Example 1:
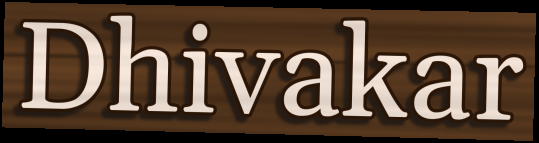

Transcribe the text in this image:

Dhivakar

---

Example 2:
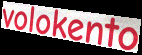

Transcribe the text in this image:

volokento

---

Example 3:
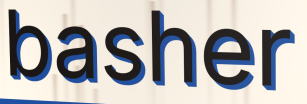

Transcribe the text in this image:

basher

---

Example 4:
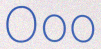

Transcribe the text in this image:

Ooo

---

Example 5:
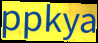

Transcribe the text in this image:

ppkya